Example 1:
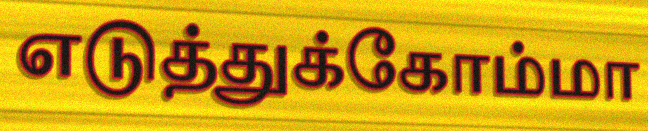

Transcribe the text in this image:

எடுத்துக்கோம்மா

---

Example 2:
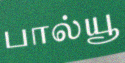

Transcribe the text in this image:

பால்யூ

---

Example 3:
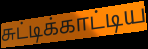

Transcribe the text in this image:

சுட்டிக்காட்டிய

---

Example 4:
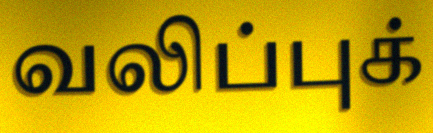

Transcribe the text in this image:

வலிப்புக்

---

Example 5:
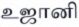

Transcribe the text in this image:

உஜானி